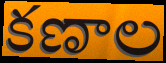
కణాల